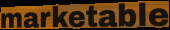
marketable